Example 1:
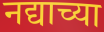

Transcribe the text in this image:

नद्याच्या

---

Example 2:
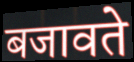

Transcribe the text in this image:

बजावते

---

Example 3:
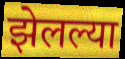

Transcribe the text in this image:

झेलल्या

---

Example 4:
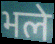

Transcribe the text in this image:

भले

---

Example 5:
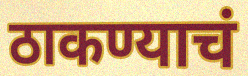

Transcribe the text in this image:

ठाकण्याचं